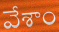
వేశాం